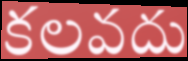
కలవదు